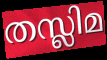
തസ്ലിമ